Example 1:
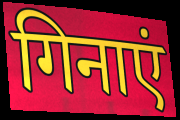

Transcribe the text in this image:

गिनाएं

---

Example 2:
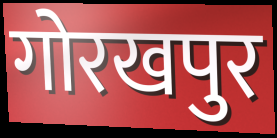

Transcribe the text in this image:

गोरखपुर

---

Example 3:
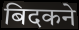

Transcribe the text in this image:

बिदकने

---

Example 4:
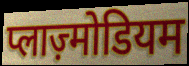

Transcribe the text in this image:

प्लाज़्मोडियम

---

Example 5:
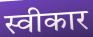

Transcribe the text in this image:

स्वीकार